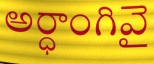
అర్ధాంగివై